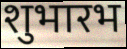
शुभारभ